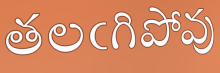
తలఁగిపోవు